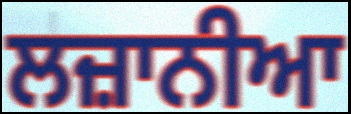
ਲਜ਼ਾਨੀਆ